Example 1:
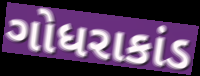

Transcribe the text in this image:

ગોધરાકાંડ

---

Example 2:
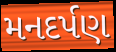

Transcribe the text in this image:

મનદર્પણ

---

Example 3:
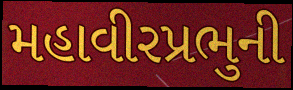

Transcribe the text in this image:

મહાવીરપ્રભુની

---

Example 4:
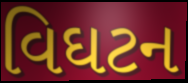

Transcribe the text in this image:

વિઘટન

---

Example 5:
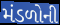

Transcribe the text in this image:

મંડળોની